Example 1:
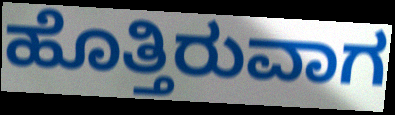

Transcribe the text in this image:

ಹೊತ್ತಿರುವಾಗ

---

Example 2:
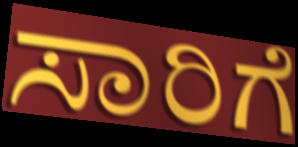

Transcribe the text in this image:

ಸಾರಿಗೆ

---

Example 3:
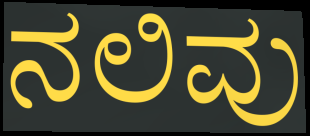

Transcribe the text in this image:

ನಲಿವು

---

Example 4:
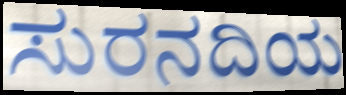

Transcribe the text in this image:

ಸುರನದಿಯ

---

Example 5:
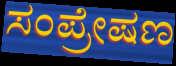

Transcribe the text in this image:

ಸಂಪ್ರೇಷಣ